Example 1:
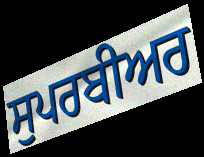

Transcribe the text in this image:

ਸੁਪਰਬੀਅਰ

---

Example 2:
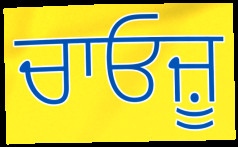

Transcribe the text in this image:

ਚਾਓਜ਼ੂ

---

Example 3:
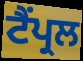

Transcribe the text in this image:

ਟੈਂਪ੍ਰਲ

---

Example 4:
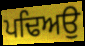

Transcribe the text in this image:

ਪਢਿਅਉ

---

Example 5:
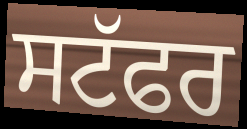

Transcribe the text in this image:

ਸਟੱਫਰ